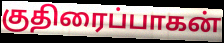
குதிரைப்பாகன்